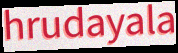
hrudayala